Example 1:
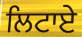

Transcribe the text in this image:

ਲਿਟਾਏ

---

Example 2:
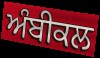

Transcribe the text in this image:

ਅੰਬੀਕਲ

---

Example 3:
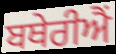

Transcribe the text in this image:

ਬਥੇਰੀਐਂ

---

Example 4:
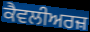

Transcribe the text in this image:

ਕੈਵਲੀਅਰਜ਼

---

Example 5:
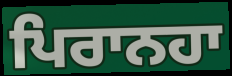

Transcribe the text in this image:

ਪਿਰਾਨਹਾ